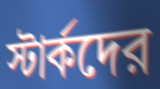
স্টার্কদের